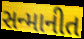
સન્માનીત